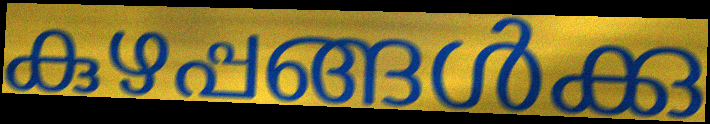
കുഴപ്പങ്ങൾക്കു